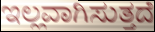
ಇಲ್ಲವಾಗಿಸುತ್ತದೆ